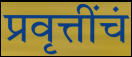
प्रवृत्तींचं